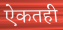
ऐकतही